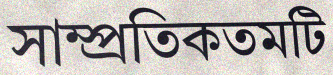
সাম্প্রতিকতমটি